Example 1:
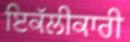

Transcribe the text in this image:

ਇਕੱਲੀਕਾਰੀ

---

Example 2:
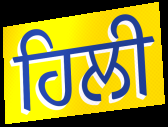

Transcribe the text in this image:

ਹਿਲੀ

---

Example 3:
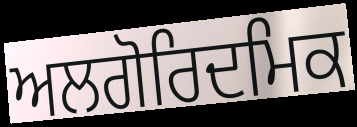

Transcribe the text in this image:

ਅਲਗੋਰਿਦਮਿਕ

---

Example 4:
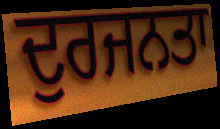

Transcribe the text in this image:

ਦੁਰਜਨਤਾ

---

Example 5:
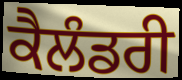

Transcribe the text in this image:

ਕੈਲੰਡਰੀ